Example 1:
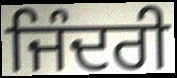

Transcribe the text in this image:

ਜਿੰਦਰੀ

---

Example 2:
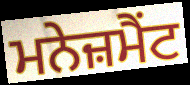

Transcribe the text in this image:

ਮਨੇਜ਼ਮੈਂਟ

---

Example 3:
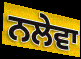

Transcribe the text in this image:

ਨਲੇਵਾ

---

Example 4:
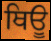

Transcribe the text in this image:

ਥਿਊ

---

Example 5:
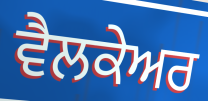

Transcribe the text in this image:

ਵੈਲਕੇਅਰ